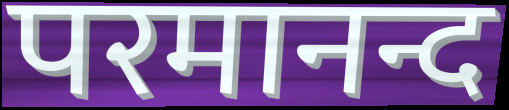
परमानन्‍द